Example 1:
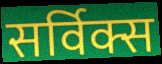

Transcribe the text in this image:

सर्विक्स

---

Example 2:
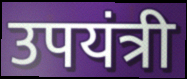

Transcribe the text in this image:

उपयंत्री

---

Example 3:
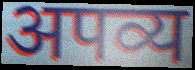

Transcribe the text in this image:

अपव्य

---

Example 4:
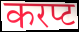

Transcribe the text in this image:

करप्ट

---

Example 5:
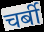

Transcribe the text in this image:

चर्बी